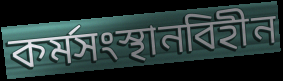
কর্মসংস্থানবিহীন